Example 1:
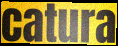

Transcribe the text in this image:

catura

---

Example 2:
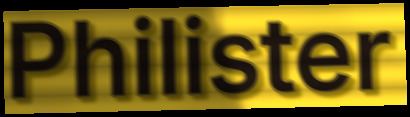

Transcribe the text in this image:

Philister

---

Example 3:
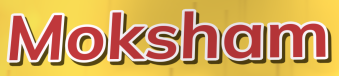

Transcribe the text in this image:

Moksham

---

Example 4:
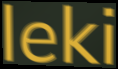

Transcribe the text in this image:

leki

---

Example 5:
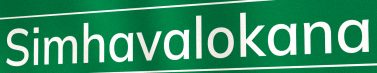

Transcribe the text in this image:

Simhavalokana